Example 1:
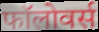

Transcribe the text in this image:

फॉलोवर्स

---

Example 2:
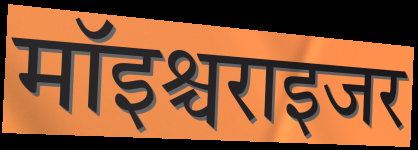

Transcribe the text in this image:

मॉइश्चराइजर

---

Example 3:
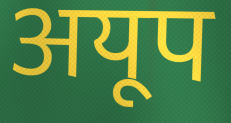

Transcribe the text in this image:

अयूप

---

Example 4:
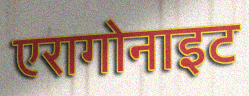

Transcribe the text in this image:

एरागोनाइट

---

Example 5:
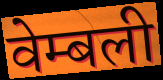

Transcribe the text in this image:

वेम्बली